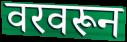
वरवरून